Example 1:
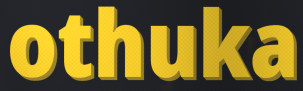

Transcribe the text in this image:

othuka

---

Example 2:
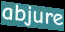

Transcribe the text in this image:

abjure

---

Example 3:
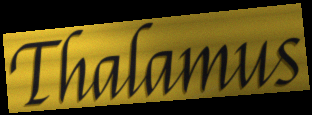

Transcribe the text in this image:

Thalamus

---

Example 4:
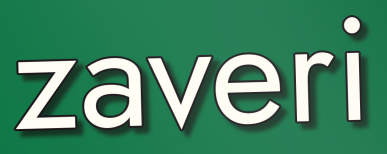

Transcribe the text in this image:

zaveri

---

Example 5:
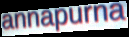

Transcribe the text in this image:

annapurna